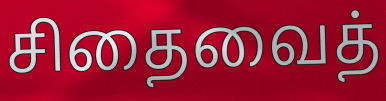
சிதைவைத்